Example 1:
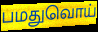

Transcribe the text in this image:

பமதுவொய்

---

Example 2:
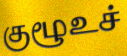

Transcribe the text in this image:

குழூஉச்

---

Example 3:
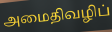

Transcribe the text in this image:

அமைதிவழிப்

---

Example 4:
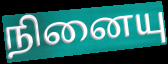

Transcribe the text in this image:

நினையு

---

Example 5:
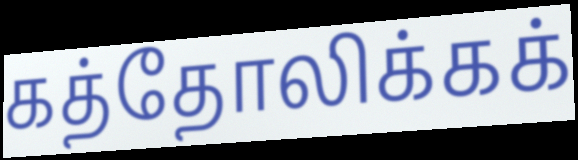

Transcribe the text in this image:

கத்தோலிக்கக்